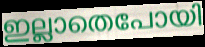
ഇല്ലാതെപോയി